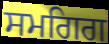
ਸਮਗਿਗ